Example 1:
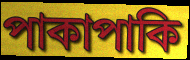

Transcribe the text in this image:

পাকাপাকি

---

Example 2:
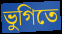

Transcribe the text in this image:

ভুগিতে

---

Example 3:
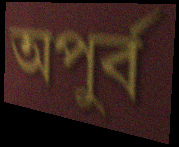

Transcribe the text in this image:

অপুর্ব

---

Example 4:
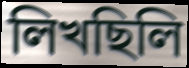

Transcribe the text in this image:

লিখছিলি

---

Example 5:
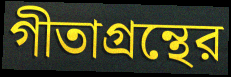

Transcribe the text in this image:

গীতাগ্রন্থের